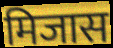
मिजास